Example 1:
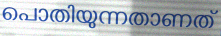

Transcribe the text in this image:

പൊതിയുന്നതാണത്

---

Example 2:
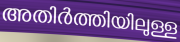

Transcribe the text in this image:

അതിർത്തിയിലുള്ള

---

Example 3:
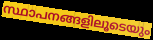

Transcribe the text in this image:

സ്ഥാപനങ്ങളിലൂടെയും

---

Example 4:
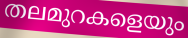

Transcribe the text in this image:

തലമുറകളെയും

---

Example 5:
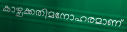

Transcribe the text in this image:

കാഴ്ചക്കതിമനോഹരമാണ്